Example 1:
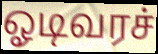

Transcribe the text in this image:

ஓடிவரச்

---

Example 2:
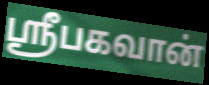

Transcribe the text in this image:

ஸ்ரீபகவான்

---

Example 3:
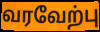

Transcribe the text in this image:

வரவேற்பு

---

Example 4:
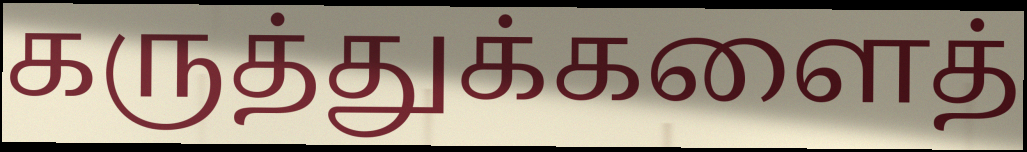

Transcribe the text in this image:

கருத்துக்களைத்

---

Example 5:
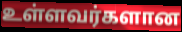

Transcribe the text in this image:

உள்ளவர்களான